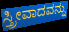
ಸ್ತ್ರೀವಾದವನ್ನು